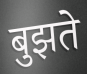
बुझते